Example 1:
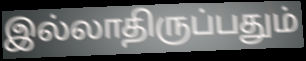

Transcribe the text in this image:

இல்லாதிருப்பதும்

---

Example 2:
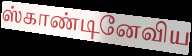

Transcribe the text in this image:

ஸ்காண்டினேவிய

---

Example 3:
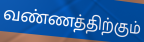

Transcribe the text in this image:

வண்ணத்திற்கும்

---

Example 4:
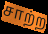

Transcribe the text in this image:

சாற்ற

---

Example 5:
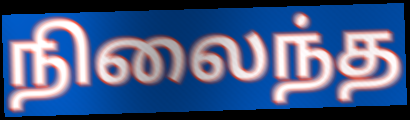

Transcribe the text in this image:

நிலைந்த